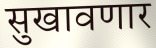
सुखावणार